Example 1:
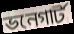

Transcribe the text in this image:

ভনেগার্ট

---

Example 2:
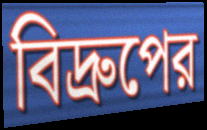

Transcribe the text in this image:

বিদ্রুপের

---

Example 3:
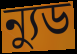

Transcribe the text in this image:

ন্যুড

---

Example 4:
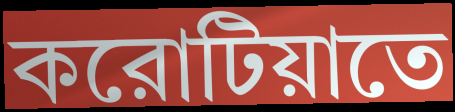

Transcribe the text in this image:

করোটিয়াতে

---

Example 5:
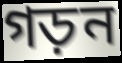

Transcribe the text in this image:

গড়ন